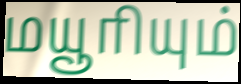
மயூரியும்